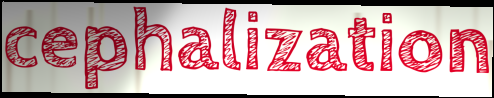
cephalization